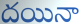
దయినా